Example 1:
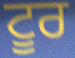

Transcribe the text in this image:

ਟੂਰ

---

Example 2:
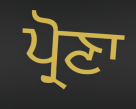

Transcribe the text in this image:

ਪ੍ਰੋਣਾ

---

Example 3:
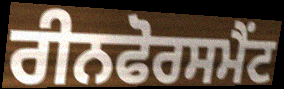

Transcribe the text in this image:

ਰੀਨਫੋਰਸਮੈਂਟ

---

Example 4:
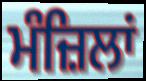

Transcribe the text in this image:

ਮੰਜ਼ਿਲਾਂ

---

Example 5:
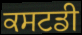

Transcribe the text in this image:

ਕਸਟਡੀ